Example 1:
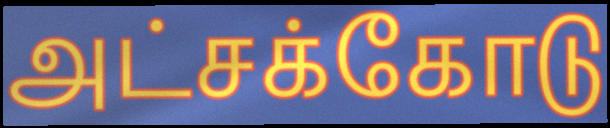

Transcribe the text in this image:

அட்சக்கோடு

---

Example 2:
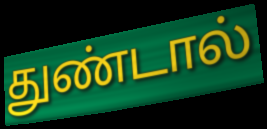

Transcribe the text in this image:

துண்டால்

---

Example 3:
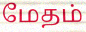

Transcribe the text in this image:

மேதம்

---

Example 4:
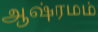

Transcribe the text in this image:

ஆஷ்ரமம்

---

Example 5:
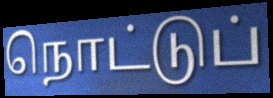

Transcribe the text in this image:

நொட்டுப்